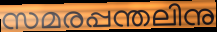
സമരപ്പന്തലിനു